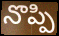
నొప్పి